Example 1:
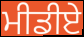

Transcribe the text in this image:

ਮੀਡੀਏ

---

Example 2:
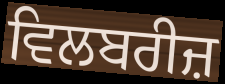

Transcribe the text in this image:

ਵਿਲਬਰੀਜ਼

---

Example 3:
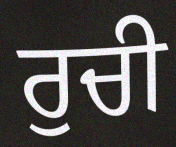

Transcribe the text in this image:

ਰੁਚੀ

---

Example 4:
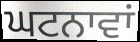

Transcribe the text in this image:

ਘਟਨਾਵਾਂ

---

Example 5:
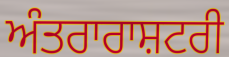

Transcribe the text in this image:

ਅੰਤਰਾਰਾਸ਼ਟਰੀ